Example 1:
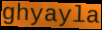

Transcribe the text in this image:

ghyayla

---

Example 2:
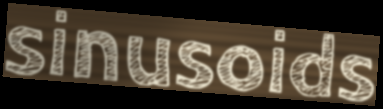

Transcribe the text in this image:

sinusoids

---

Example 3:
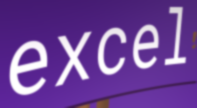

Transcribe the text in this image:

excel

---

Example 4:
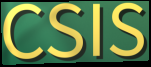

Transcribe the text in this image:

CSIS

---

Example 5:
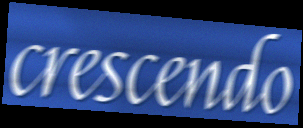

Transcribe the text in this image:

crescendo